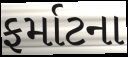
ફર્માટના